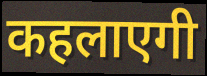
कहलाएगी